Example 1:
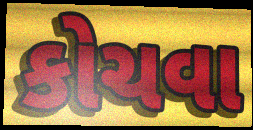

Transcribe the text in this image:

કોચવા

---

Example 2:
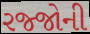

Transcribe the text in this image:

રજ્જોની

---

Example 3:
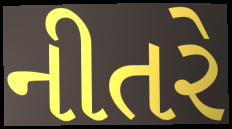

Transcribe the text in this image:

નીતરે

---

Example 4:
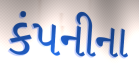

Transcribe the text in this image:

કંપનીના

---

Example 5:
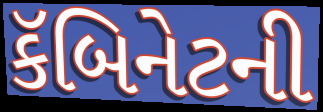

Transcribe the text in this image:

કૅબિનેટની